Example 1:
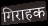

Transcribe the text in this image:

गिराहक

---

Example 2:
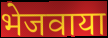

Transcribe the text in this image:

भेजवाया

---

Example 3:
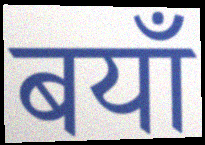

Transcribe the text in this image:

बयाँ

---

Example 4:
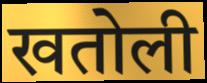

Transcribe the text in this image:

खतोली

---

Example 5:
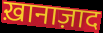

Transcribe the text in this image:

ख़ानाज़ाद